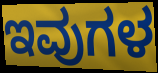
ಇವುಗಳ